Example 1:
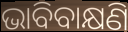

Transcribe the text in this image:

ଭାବିବାକ୍ଷଣି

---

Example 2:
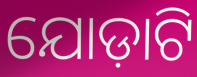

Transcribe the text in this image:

ଯୋଡ଼ାଟି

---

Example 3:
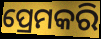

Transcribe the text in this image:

ପ୍ରେମକରି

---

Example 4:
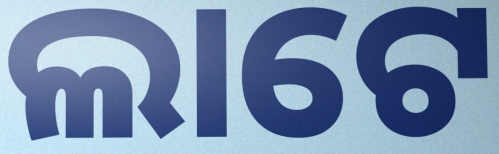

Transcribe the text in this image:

ଲାଟେ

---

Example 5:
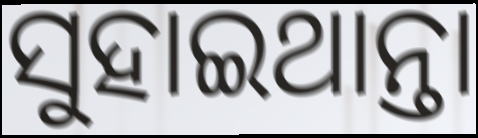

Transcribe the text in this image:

ସୁହାଇଥାନ୍ତା